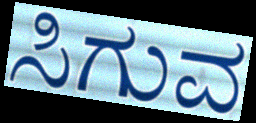
ಸಿಗುವ